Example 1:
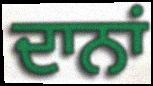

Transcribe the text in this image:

ਦਾਨਾਂ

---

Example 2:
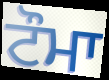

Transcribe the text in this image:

ਟੌਮਾ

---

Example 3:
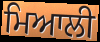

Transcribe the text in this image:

ਮਿਆਲੀ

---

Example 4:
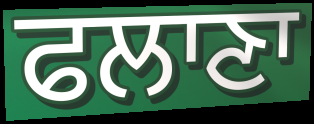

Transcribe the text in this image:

ਫਲਾਣਾ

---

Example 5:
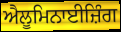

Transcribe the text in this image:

ਐਲੂਮਿਨਾਈਜ਼ਿੰਗ